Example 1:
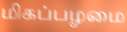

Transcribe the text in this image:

மிகப்பழமை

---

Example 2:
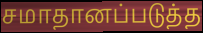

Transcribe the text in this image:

சமாதானப்படுத்த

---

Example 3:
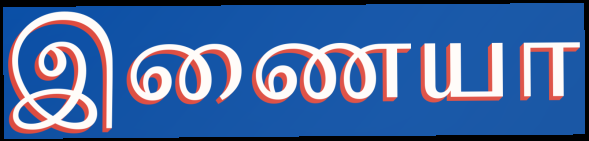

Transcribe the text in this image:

இணையா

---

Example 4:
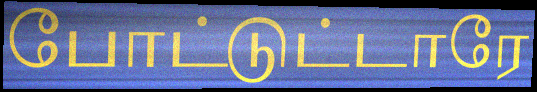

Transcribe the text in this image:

போட்டுட்டாரே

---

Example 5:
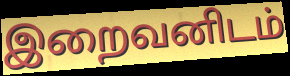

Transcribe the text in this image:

இறைவனிடம்